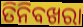
ତିନିବଖରା